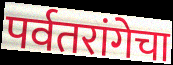
पर्वतरांगेचा